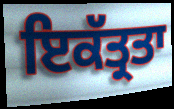
ਇਕੱਤ੍ਰਤਾ